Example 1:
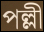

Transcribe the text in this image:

পল্লী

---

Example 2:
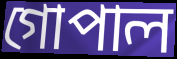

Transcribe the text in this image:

গোপাল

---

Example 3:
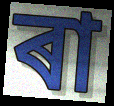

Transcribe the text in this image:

ৰা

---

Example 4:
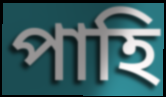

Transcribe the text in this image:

পাহি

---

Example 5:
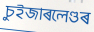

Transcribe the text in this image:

চুইজাৰলেণ্ডৰ